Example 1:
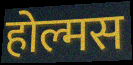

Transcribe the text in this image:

होल्मस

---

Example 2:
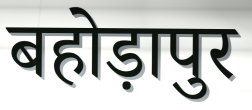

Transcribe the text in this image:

बहोड़ापुर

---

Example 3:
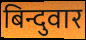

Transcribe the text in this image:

बिन्दुवार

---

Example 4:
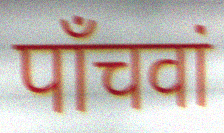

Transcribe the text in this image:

पाँचवां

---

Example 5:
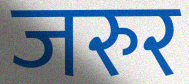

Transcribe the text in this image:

जरुर